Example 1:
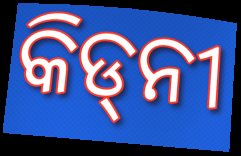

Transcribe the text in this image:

କିଡ୍‌ନୀ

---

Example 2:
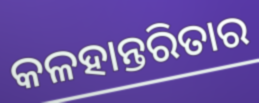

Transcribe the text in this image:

କଳହାନ୍ତରିତାର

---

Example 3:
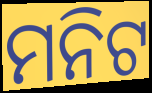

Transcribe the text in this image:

ମନିଟ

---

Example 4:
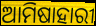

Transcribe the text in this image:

ଆମିଷାହାରୀ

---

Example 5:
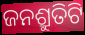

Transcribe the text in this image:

ଜନଶ୍ରୁତିଟି